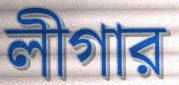
লীগার